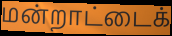
மன்றாட்டைக்